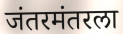
जंतरमंतरला